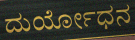
ದುರ್ಯೋಧನ